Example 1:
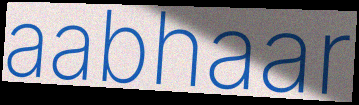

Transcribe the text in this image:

aabhaar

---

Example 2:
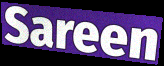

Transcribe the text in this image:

Sareen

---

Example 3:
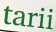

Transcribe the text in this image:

tarii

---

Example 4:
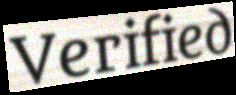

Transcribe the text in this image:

Verified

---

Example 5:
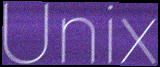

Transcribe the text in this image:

Unix